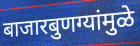
बाजारबुणग्यांमुळे